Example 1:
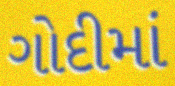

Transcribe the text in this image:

ગોદીમાં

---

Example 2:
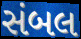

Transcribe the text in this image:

સંબલ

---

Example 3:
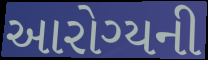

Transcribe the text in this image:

આરોગ્યની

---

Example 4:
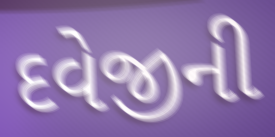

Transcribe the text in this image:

દવેજીની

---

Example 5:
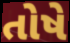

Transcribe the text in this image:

તોષે